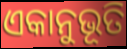
ଏକାନୁଭୂତି